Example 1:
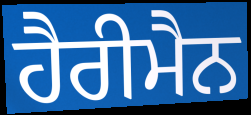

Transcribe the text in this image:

ਹੈਰੀਮੈਨ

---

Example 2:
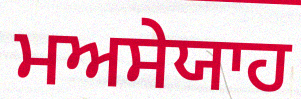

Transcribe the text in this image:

ਮਅਸੇਯਾਹ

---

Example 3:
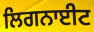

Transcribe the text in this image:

ਲਿਗਨਾਈਟ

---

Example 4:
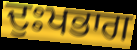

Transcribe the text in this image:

ਦੁਃਖਭਾਗ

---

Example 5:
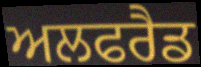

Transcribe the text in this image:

ਅਲਫਰੈਡ